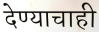
देण्याचाही